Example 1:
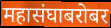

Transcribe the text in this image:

महासंघाबरोबर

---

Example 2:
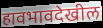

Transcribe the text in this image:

हावभावदेखील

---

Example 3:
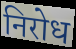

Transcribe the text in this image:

निरोध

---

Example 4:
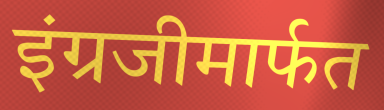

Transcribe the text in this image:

इंग्रजीमार्फत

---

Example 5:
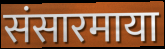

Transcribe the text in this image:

संसारमाया